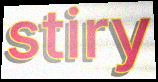
stiry